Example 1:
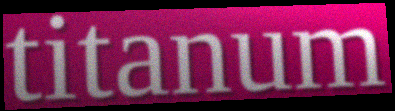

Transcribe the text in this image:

titanum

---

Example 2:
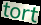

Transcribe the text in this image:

tort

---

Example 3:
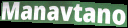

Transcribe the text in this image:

Manavtano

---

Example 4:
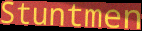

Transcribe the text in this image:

Stuntmen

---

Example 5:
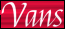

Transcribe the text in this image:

Vans